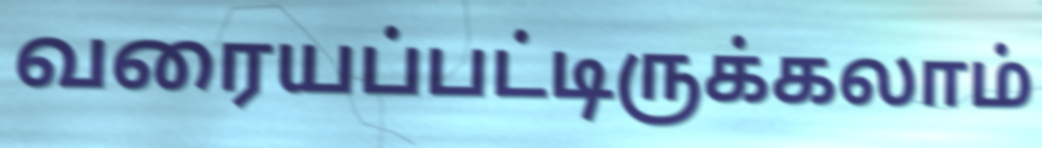
வரையப்பட்டிருக்கலாம்